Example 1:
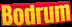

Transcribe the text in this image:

Bodrum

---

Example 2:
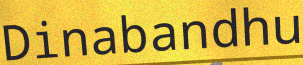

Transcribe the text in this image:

Dinabandhu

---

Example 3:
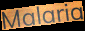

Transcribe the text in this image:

Malaria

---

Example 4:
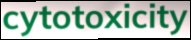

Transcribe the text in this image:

cytotoxicity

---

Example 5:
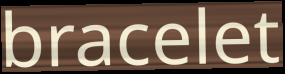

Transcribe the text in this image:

bracelet